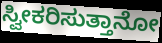
ಸ್ವೀಕರಿಸುತ್ತಾನೋ